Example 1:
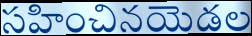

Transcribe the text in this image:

సహించినయెడల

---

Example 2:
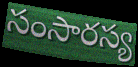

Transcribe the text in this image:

సంసారస్య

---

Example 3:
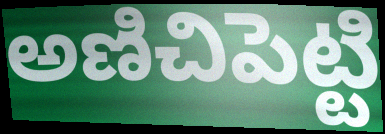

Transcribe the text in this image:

అణిచిపెట్టి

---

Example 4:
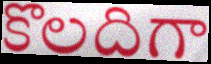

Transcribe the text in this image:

కొలదిగా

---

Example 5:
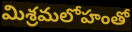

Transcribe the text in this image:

మిశ్రమలోహంతో